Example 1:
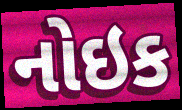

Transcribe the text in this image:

નોઇક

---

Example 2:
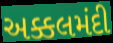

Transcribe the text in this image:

અક્કલમંદી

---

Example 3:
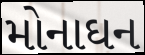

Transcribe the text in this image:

મોનાઘન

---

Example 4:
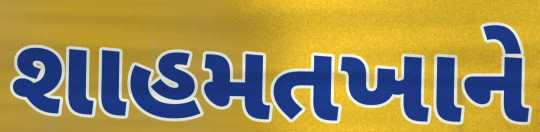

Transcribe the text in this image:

શાહમતખાને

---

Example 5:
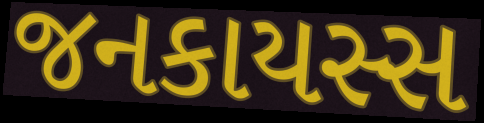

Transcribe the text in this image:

જનકાયસ્સ